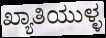
ಖ್ಯಾತಿಯುಳ್ಳ